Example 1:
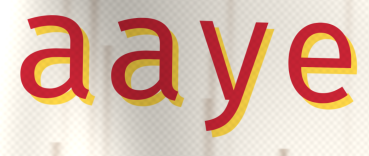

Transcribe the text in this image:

aaye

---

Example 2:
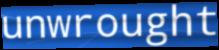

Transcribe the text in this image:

unwrought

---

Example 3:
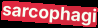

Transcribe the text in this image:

sarcophagi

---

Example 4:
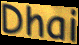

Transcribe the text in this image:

Dhai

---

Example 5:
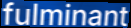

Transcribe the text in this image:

fulminant